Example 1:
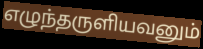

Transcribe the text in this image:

எழுந்தருளியவனும்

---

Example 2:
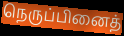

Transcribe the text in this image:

நெருப்பினைத்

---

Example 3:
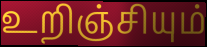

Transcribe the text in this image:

உறிஞ்சியும்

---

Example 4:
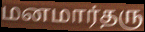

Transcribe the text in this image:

மனமார்தரு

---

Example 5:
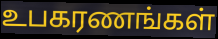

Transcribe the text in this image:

உபகரணங்கள்